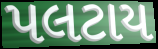
પલટાય